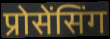
प्रोसेंसिंग